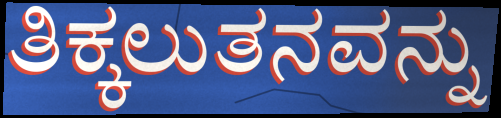
ತಿಕ್ಕಲುತನವನ್ನು